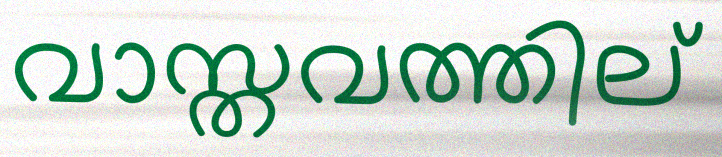
വാസ്തവത്തില്